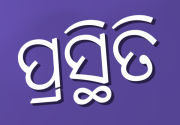
ପ୍ରସ୍ଥିତି